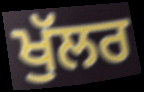
ਖੁੱਲਰ